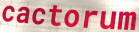
cactorum